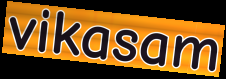
vikasam